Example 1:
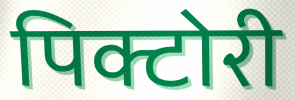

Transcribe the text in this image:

पिक्टोरी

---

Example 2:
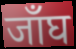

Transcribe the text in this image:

जाँघ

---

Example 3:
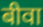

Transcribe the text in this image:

बीवा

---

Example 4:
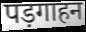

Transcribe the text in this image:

पड़गाहन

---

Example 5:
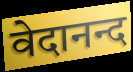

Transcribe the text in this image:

वेदानन्द